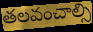
తలవంచాల్సి